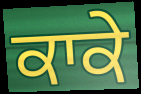
ਕਾਕੇ